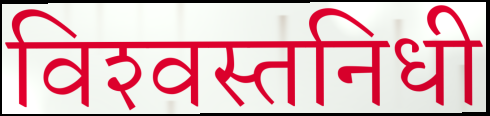
विश्वस्तनिधी